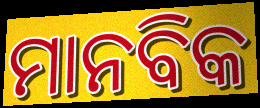
ମାନବିକ